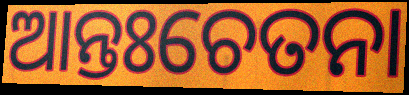
ଆନ୍ତଃଚେତନା